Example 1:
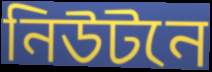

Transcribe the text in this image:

নিউটনে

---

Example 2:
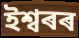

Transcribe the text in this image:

ইশ্বৰৰ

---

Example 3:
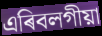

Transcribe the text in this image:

এৰিবলগীয়া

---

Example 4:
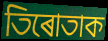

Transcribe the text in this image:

তিৰোতাক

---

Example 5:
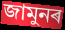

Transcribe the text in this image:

জামুনৰ